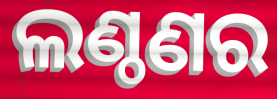
ଲଣ୍ଠଣର